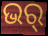
ଭର୍